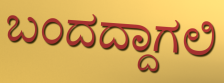
ಬಂದದ್ದಾಗಲಿ